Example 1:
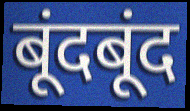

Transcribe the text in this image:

बूंदबूंद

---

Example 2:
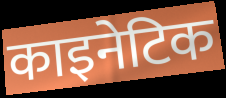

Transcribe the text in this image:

काइनेटिक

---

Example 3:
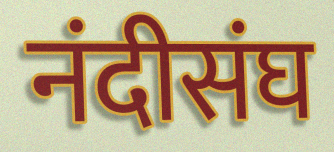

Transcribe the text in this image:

नंदीसंघ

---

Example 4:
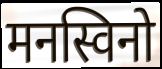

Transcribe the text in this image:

मनस्विनो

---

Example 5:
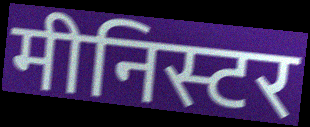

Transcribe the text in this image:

मीनिस्टर